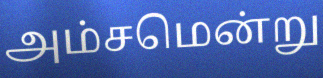
அம்சமென்று